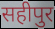
सहीपुर